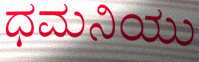
ಧಮನಿಯು